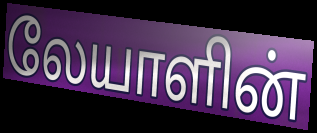
லேயாளின்